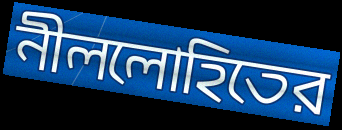
নীললোহিতের